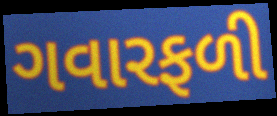
ગવારફળી